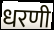
धरणी